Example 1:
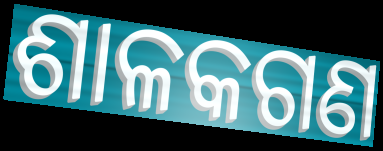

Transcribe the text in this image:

ଶାଳକଗଣ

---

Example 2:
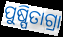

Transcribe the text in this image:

ପୁଷ୍ପିତାଗ୍ରା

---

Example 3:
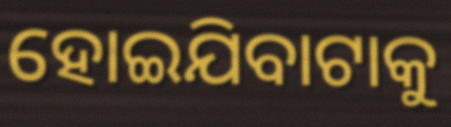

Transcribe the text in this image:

ହୋଇଯିବାଟାକୁ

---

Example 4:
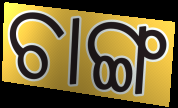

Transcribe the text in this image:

ଚାଙ୍ଗ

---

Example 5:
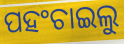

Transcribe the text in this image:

ପହଂଚାଇଲୁ